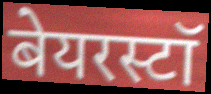
बेयरस्टॉ